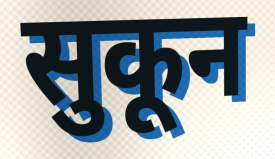
सुकून